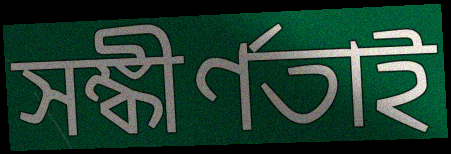
সঙ্কীর্ণতাই